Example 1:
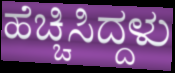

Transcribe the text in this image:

ಹೆಚ್ಚಿಸಿದ್ದಳು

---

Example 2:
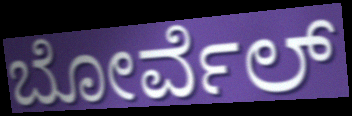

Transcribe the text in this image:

ಬೋರ್ವೆಲ್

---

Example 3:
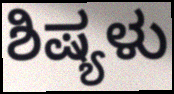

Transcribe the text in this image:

ಶಿಷ್ಯಳು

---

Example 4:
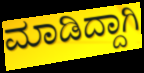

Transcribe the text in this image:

ಮಾಡಿದ್ದಾಗಿ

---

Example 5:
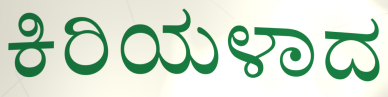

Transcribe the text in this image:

ಕಿರಿಯಳಾದ